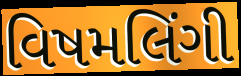
વિષમલિંગી